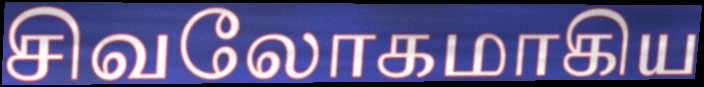
சிவலோகமாகிய